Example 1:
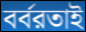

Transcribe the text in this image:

বর্বরতাই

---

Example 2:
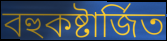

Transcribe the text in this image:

বহুকষ্টার্জিত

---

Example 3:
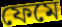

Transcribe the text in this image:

ফেমে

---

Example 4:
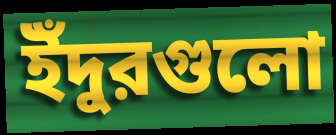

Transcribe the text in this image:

ইঁদুরগুলো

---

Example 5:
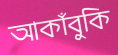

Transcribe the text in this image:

আকাঁবুকি